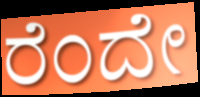
ರೆಂದೇ